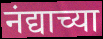
नंद्याच्या